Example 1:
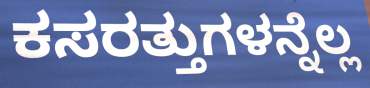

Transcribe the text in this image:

ಕಸರತ್ತುಗಳನ್ನೆಲ್ಲ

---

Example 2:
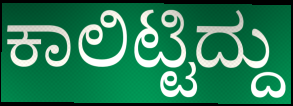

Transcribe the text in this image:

ಕಾಲಿಟ್ಟಿದ್ದು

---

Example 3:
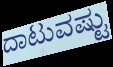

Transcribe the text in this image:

ದಾಟುವಷ್ಟು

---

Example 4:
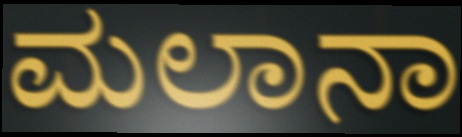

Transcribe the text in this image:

ಮಲಾನಾ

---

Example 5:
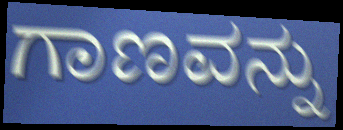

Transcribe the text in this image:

ಗಾಣವನ್ನು